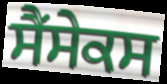
ਸੈਂਸੇਕਸ